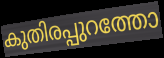
കുതിരപ്പുറത്തോ